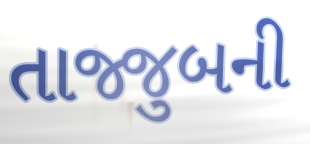
તાજ્જુબની